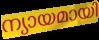
ന്യായമായി